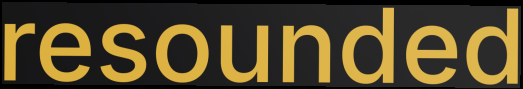
resounded